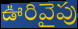
ఊరివైపు